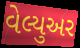
વેલ્યુઅર